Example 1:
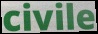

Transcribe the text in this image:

civile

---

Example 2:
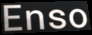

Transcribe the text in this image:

Enso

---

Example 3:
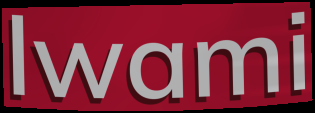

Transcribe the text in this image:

lwami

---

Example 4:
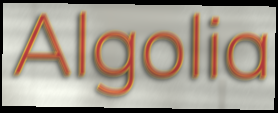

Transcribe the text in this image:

Algolia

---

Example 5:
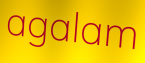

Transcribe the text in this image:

agalam